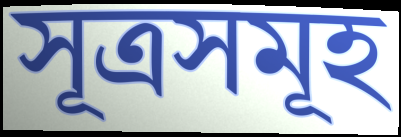
সূত্রসমূহ